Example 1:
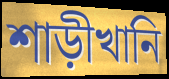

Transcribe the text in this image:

শাড়ীখানি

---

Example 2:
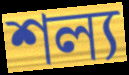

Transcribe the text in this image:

শল্য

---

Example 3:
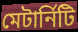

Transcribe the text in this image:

মেটার্নিটি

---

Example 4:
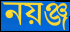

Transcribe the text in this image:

নয়ঞ্জ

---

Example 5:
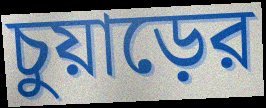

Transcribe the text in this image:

চুয়াড়ের